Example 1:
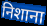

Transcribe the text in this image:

निशाना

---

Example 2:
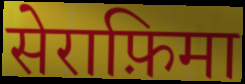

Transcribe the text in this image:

सेराफ़िमा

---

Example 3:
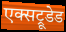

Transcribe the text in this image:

एक्सट्रूडेड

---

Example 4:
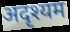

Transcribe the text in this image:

अदृश्यम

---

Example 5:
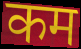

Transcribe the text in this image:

कम